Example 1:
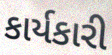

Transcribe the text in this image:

કાર્યકારી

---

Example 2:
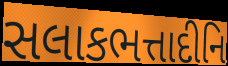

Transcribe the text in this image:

સલાકભત્તાદીનિ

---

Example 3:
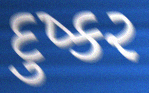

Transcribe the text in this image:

દુષ્કર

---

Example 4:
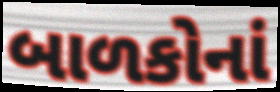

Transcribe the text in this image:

બાળકોનાં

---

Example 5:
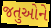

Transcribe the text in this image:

જતુઓને